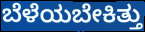
ಬೆಳೆಯಬೇಕಿತ್ತು